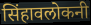
सिंहावलोकनी